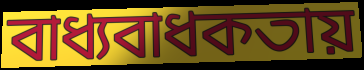
বাধ্যবাধকতায়